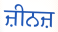
ਜ਼ੀਨਜ਼